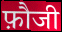
फ़ौजी